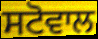
ਸਟੋਵਾਲ